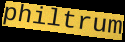
philtrum